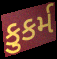
કુકર્મ